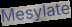
Mesylate